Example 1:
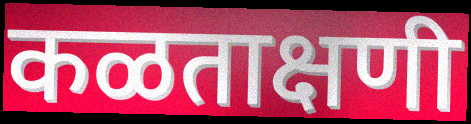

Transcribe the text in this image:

कळताक्षणी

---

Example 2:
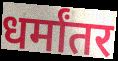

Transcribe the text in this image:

धर्मांतर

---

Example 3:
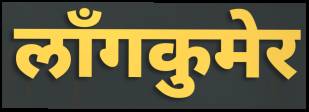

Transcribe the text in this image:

लाँगकुमेर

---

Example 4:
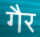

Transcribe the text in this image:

गैर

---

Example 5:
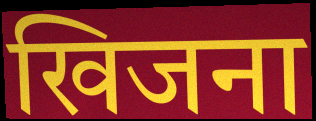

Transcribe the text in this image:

खिजना